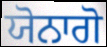
ਯੋਨਾਗੋ